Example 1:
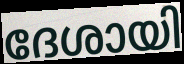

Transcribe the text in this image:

ദേശായി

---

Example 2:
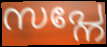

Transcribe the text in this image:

സപ്നേ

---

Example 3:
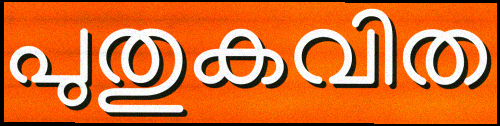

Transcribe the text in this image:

പുതുകവിത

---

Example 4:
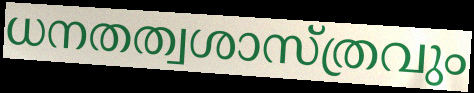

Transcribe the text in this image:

ധനതത്വശാസ്ത്രവും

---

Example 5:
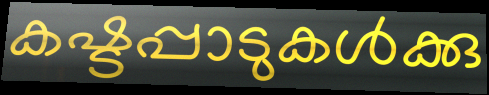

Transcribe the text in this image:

കഷ്ടപ്പാടുകൾക്കു